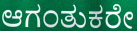
ಆಗಂತುಕರೇ